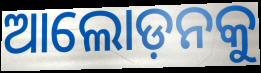
ଆଲୋଡ଼ନକୁ